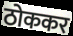
ठोककर